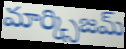
మార్క్సిజమ్